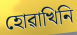
হোৱাখিনি